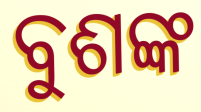
ବୁଶଙ୍କ